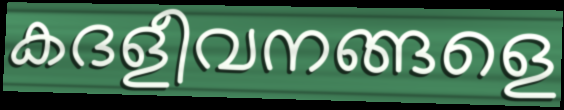
കദളീവനങ്ങളെ